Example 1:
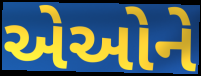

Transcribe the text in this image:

એઓને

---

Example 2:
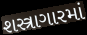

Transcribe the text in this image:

શસ્ત્રાગારમાં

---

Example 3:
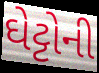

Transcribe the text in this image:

ઘેટ્ટોની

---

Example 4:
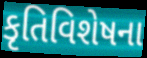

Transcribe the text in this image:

કૃતિવિશેષના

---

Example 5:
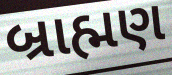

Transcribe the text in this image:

બ્રાહ્મણ